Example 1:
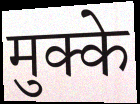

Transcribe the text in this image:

मुक्के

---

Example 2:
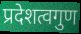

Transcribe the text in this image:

प्रदेशत्वगुण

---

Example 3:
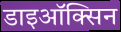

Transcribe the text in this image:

डाइऑक्सिन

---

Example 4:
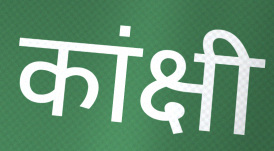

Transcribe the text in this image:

कांक्षी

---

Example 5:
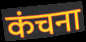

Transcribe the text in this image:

कंचना